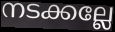
നടക്കല്ലേ